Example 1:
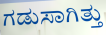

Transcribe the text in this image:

ಗಡುಸಾಗಿತ್ತು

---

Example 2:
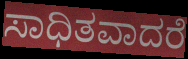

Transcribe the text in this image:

ಸಾಧಿತವಾದರೆ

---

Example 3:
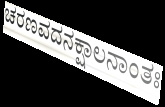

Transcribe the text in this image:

ಚರಣವದನಕ್ಷಾಲನಾಂತಃ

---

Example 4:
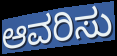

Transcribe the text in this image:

ಆವರಿಸು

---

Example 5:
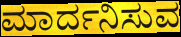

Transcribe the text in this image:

ಮಾರ್ದನಿಸುವ